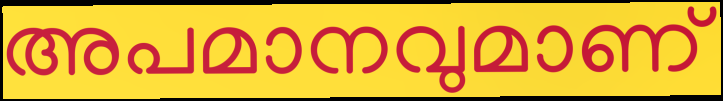
അപമാനവുമാണ്